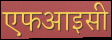
एफआइसी